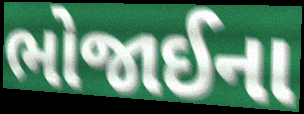
ભોજાઈના